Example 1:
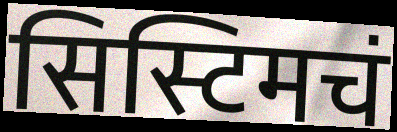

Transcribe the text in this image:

सिस्टिमचं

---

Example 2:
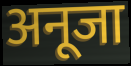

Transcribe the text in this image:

अनूजा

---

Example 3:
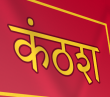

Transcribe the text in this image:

कंठश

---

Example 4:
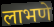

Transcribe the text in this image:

लाभणे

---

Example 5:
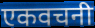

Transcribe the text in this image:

एकवचनी